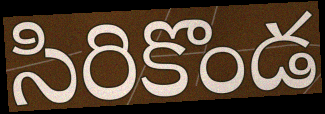
సిరికొండ